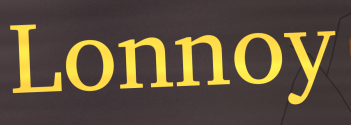
Lonnoy